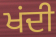
ਖਂਦੀ